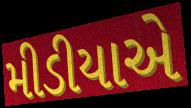
મીડીયાએ